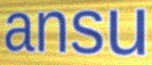
ansu